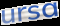
ursa